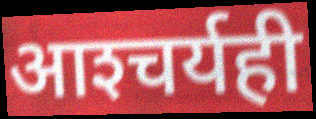
आश्‍चर्यही